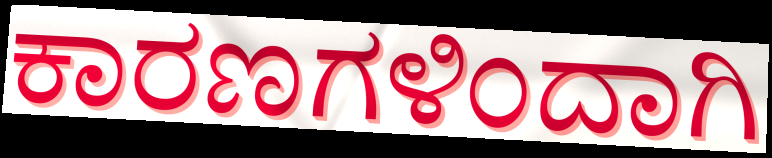
ಕಾರಣಗಳಿಂದಾಗಿ